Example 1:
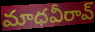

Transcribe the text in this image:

మాధవీరావ్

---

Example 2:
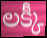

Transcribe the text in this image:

లక్కీ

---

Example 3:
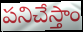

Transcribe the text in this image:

పనిచేస్తాం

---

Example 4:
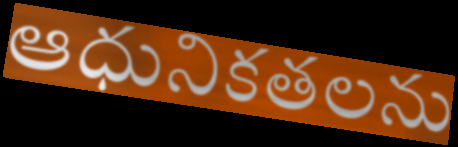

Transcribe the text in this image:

ఆధునికతలను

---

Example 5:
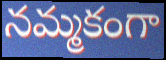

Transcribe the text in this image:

నమ్మకంగా